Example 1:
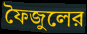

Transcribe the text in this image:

ফৈজুলের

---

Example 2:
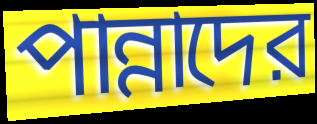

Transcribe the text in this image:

পান্নাদের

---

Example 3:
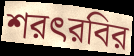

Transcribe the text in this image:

শরৎরবির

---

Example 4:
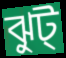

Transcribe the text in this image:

ঝুট্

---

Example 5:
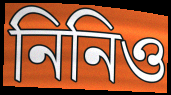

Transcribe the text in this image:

নিনিও